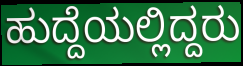
ಹುದ್ದೆಯಲ್ಲಿದ್ದರು